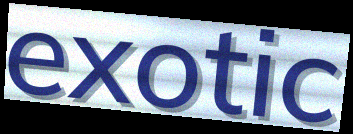
exotic